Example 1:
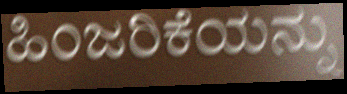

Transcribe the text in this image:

ಹಿಂಜರಿಕೆಯನ್ನು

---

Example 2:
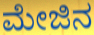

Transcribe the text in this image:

ಮೇಜಿನ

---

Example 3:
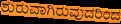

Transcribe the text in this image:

ಶುರುವಾಗಿರುವುದರಿಂದ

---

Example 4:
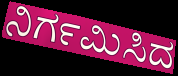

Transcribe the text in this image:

ನಿರ್ಗಮಿಸಿದ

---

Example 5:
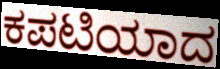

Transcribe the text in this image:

ಕಪಟಿಯಾದ